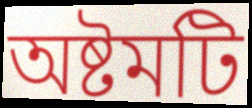
অষ্টমটি